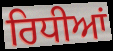
ਰਿਧੀਆਂ